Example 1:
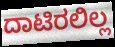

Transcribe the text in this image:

ದಾಟಿರಲಿಲ್ಲ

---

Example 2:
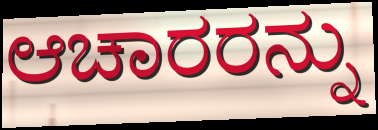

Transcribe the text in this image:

ಆಚಾರರನ್ನು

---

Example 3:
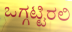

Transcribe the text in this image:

ಒಗ್ಗಟ್ಟಿರಲಿ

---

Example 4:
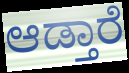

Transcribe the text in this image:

ಆಡ್ತಾರೆ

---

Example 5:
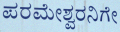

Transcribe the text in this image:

ಪರಮೇಶ್ವರನಿಗೇ